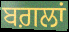
ਬਗ਼ਲਾਂ